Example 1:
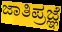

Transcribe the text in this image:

ಜಾತಿಪ್ರಜ್ಞೆ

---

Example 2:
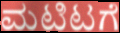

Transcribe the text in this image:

ಮಟಿಟಗೆ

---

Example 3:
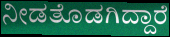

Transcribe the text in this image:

ನೀಡತೊಡಗಿದ್ದಾರೆ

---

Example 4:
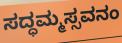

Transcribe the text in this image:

ಸದ್ಧಮ್ಮಸ್ಸವನಂ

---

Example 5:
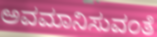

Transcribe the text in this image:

ಅವಮಾನಿಸುವಂತೆ